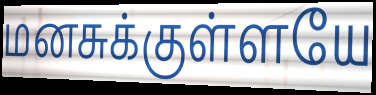
மனசுக்குள்ளயே